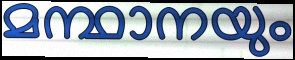
മന്ഥാനയും